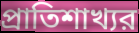
প্রাতিশাখ্যর